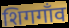
शिगगाँव